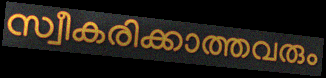
സ്വീകരിക്കാത്തവരും